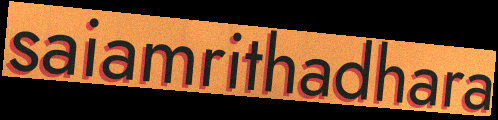
saiamrithadhara